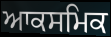
ਆਕਸਮਿਕ